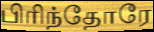
பிரிந்தோரே